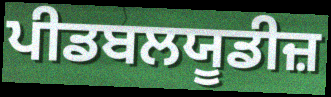
ਪੀਡਬਲਯੂਡੀਜ਼